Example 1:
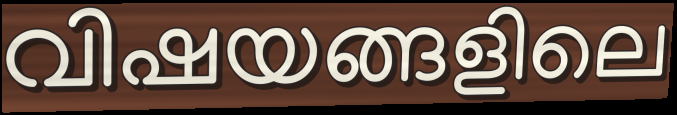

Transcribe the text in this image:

വിഷയങ്ങളിലെ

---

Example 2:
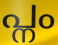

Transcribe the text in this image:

പ്നം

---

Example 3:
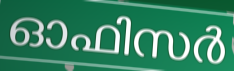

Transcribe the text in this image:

ഓഫിസർ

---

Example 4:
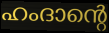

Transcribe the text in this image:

ഹംദാന്റെ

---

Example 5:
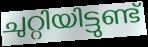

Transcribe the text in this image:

ചുറ്റിയിട്ടുണ്ട്